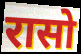
रासो